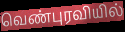
வெண்புரவியில்